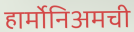
हार्मोनिअमची